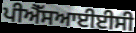
ਪੀਐੱਸਆਈਈਸੀ